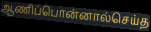
ஆணிப்பொன்னால்செய்த